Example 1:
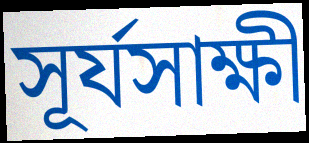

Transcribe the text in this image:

সূর্যসাক্ষী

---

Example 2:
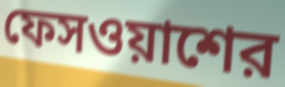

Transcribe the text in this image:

ফেসওয়াশের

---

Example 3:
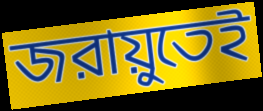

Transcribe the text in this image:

জরায়ুতেই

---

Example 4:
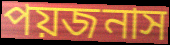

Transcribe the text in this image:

পয়জনাস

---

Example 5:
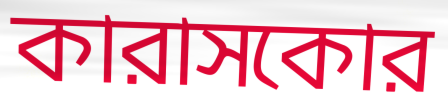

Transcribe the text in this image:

কারাসকোর